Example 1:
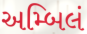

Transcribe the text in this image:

અમ્બિલં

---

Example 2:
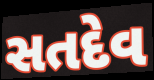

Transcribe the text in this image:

સતદેવ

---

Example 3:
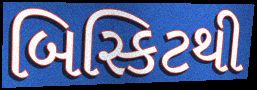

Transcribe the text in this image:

બિસ્કિટથી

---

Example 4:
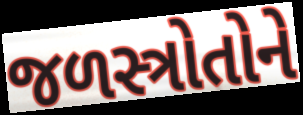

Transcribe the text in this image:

જળસ્ત્રોતોને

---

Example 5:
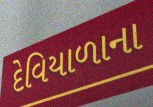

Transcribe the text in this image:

દેવિયાળાના